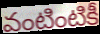
వంటింటికీ